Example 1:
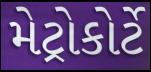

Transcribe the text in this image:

મેટ્રોકોર્ટે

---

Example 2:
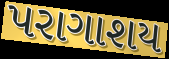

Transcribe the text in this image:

પરાગાશય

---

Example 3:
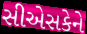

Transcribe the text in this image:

સીએસકેને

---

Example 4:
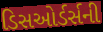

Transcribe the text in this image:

ડિસઓર્ડર્સની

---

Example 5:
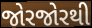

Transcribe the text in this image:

જોરજોરથી